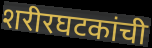
शरीरघटकांची